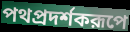
পথপ্রদর্শকরূপে